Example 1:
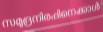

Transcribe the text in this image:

സമുദ്രനിരപ്പിനെക്കാൾ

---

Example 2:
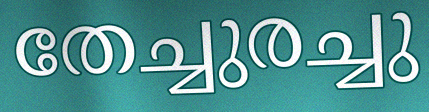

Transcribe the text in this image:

തേച്ചുരച്ചു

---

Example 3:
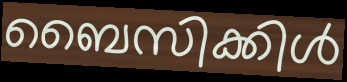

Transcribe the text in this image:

ബൈസിക്കിൾ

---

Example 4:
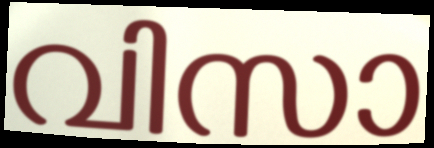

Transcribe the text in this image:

വിസാ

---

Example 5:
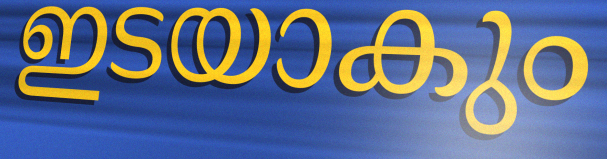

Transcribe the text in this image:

ഇടയാകും